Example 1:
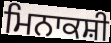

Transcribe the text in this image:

ਮਿਨਾਕਸ਼ੀ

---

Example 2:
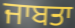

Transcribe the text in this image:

ਜਾਬਤਾ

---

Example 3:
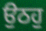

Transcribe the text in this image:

ਉਠਹੁ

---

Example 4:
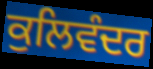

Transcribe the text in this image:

ਕੁਲਿਵੰਦਰ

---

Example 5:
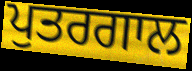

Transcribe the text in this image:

ਪੁਤਰਗਾਲ